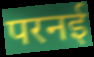
परनई